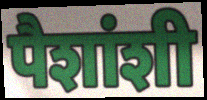
पैशांशी